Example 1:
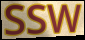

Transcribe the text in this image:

SSW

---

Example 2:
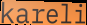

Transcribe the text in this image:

kareli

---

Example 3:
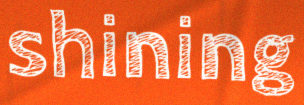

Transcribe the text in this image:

shining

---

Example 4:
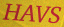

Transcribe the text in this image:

HAVS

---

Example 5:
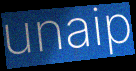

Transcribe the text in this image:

unaip